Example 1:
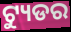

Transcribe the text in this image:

ଟ୍ୟୁଡର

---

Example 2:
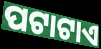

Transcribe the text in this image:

ପଟାଟାଏ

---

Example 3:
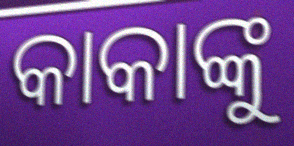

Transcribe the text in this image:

କାକାଙ୍କୁ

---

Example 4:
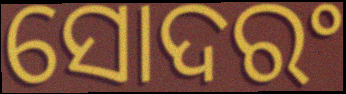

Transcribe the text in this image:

ସୋଦରଂ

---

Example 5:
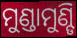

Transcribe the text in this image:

ମୁଣ୍ଡାମୁଣ୍ଡି